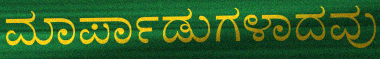
ಮಾರ್ಪಾಡುಗಳಾದವು